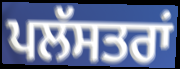
ਪਲੱਸਤਰਾਂ